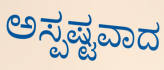
ಅಸ್ಪಷ್ಟವಾದ